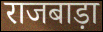
राजबाड़ा